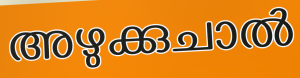
അഴുക്കുചാൽ